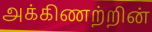
அக்கிணற்றின்